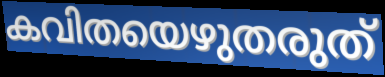
കവിതയെഴുതരുത്